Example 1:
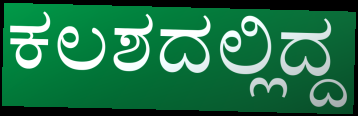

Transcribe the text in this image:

ಕಲಶದಲ್ಲಿದ್ದ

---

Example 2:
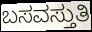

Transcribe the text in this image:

ಬಸವಸ್ತುತಿ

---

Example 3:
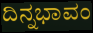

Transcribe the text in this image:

ದಿನ್ನಭಾವಂ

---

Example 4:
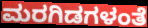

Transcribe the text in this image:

ಮರಗಿಡಗಳಂತೆ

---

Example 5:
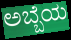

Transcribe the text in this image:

ಅಬ್ಬೆಯ